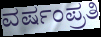
ವರ್ಷಂಪ್ರತಿ